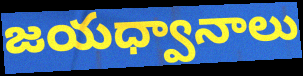
జయధ్వానాలు